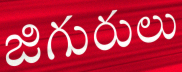
జిగురులు